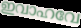
ഇവാഹവേ